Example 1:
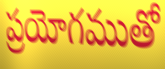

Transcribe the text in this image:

ప్రయోగముతో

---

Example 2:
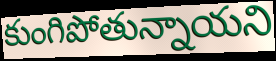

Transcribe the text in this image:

కుంగిపోతున్నాయని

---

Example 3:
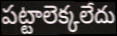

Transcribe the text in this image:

పట్టాలెక్కలేదు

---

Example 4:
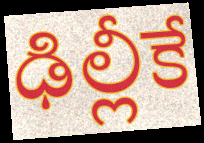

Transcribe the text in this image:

ఢిల్లీకే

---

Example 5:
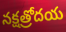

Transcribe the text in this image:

నక్షత్రోదయ